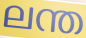
ലന്ത